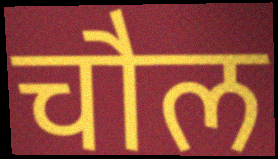
चौल